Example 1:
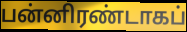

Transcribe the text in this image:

பன்னிரண்டாகப்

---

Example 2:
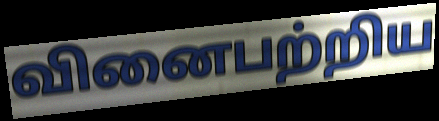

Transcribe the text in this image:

வினைபற்றிய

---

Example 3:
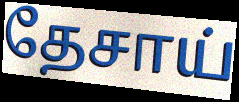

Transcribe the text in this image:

தேசாய்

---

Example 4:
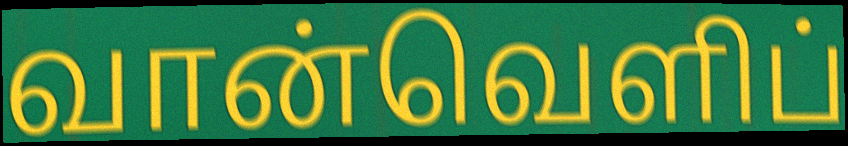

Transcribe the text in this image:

வான்வெளிப்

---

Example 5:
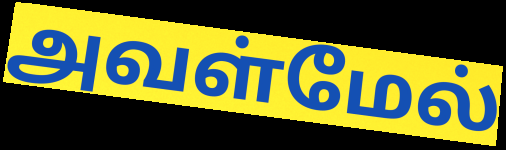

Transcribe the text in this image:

அவள்மேல்